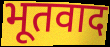
भूतवाद